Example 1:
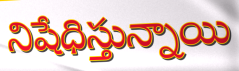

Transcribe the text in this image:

నిషేధిస్తున్నాయి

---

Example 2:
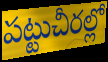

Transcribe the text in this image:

పట్టుచీరల్లో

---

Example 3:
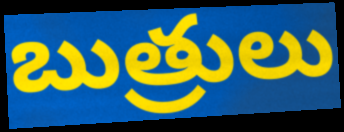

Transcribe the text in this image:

బుత్రులు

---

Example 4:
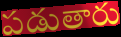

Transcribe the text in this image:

పడుతారు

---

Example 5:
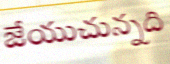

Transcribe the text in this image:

జేయుచున్నది